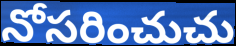
నోసరించుచు